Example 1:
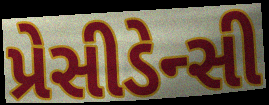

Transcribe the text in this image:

પ્રેસીડેન્સી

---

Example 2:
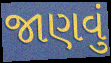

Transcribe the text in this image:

જાણવું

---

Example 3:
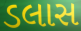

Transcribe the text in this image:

ડલાસ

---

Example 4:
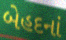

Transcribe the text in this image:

બેહદનાં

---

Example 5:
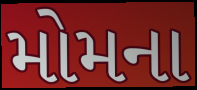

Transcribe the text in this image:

મોમના